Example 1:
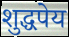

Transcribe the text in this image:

शुद्धपेय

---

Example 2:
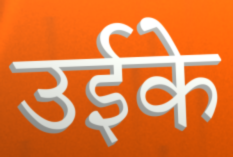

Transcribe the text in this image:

उईके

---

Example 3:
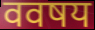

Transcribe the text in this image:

ववषय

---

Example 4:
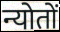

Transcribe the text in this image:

न्योतों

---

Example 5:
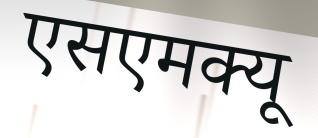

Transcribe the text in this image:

एसएमक्यू